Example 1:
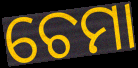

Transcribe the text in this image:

ଚେମା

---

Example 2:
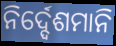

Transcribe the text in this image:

ନିର୍ଦ୍ଦେଶମାନି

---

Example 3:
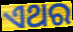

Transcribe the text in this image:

ଏଥର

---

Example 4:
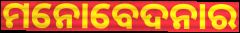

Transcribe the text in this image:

ମନୋବେଦନାର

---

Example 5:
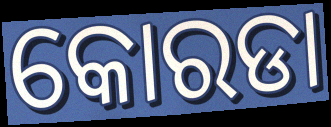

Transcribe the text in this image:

କୋରଡା